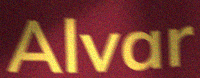
Alvar